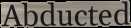
Abducted